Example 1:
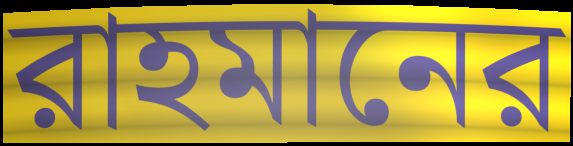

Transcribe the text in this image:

রাহমানের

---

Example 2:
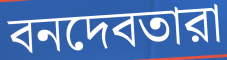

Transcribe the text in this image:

বনদেবতারা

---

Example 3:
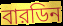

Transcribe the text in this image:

বারডিন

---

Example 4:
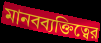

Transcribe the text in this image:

মানবব্যক্তিত্বের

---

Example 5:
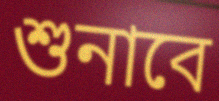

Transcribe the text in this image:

শুনাবে